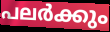
പലർക്കും